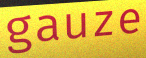
gauze